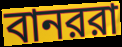
বানররা